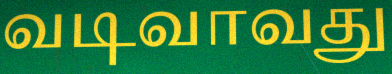
வடிவாவது